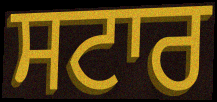
ਸਟਾਰ